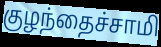
குழந்தைச்சாமி